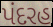
પંદરહ